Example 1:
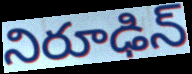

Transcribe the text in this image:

నిరూఢిన్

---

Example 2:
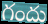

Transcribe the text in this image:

గందు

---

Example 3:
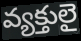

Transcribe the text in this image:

వ్యక్తులై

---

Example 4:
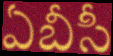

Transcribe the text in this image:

ఏబీసీ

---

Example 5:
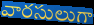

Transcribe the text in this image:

వారసులుగా